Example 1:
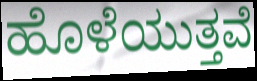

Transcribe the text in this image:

ಹೊಳೆಯುತ್ತವೆ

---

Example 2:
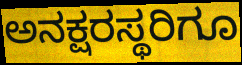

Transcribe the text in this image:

ಅನಕ್ಷರಸ್ಥರಿಗೂ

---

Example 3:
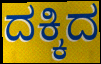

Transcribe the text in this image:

ದಕ್ಕಿದ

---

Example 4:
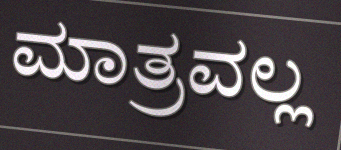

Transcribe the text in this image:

ಮಾತ್ರವಲ್ಲ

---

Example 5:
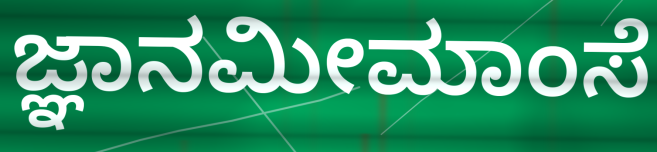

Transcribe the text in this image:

ಜ್ಞಾನಮೀಮಾಂಸೆ